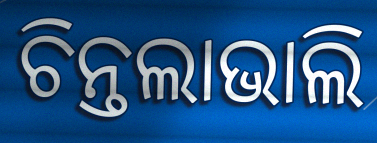
ଚିନ୍ତଲାଭାଲି